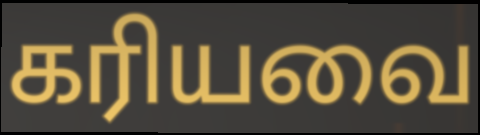
கரியவை